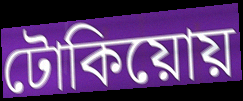
টোকিয়োয়